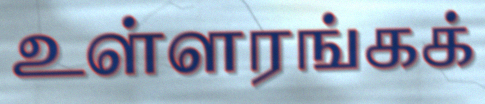
உள்ளரங்கக்